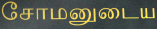
சோமனுடைய